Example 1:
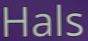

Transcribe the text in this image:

Hals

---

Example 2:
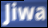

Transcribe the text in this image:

Jiwa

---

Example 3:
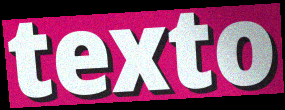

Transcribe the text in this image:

texto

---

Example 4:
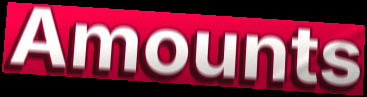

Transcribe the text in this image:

Amounts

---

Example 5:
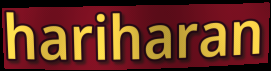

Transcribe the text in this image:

hariharan